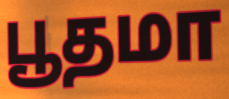
பூதமா